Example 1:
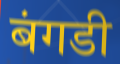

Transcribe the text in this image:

बंगडी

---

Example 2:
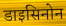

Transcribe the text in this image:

डाइसिनोन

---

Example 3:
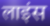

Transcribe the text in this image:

लाइंस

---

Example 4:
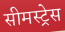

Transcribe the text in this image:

सीमस्ट्रेस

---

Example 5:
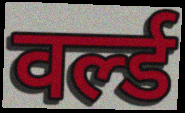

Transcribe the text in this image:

वर्ल्ड